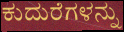
ಕುದುರೆಗಳನ್ನು